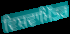
ਵਿਸ਼ਵਾਮਿੱਤਰ